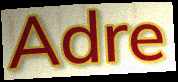
Adre